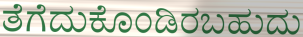
ತೆಗೆದುಕೊಂಡಿರಬಹುದು